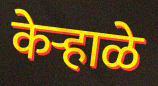
केऱ्हाळे